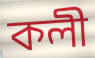
কলী